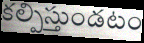
కల్పిస్తుండటం